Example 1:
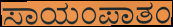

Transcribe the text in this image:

ಸಾಯಂಪಾತಂ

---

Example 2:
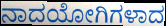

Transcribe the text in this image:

ನಾದಯೋಗಿಗಳಾದ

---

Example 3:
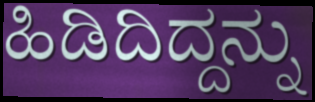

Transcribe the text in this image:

ಹಿಡಿದಿದ್ದನ್ನು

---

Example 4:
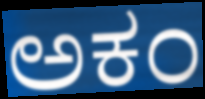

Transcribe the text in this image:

ಅಕಂ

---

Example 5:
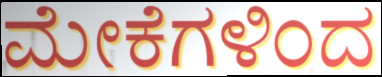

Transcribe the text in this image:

ಮೇಕೆಗಳಿಂದ